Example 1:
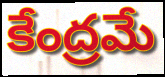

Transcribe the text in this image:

కేంద్రమే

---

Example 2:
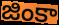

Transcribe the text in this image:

జింకా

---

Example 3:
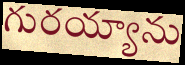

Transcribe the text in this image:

గురయ్యాను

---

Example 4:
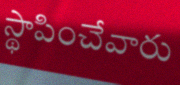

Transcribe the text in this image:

స్థాపించేవారు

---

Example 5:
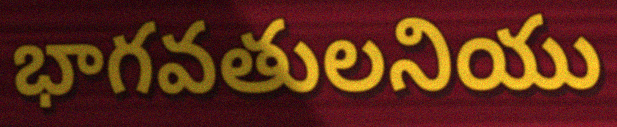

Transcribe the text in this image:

భాగవతులనియు